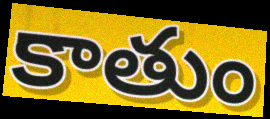
కాతుం